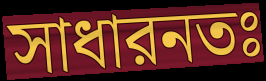
সাধারনতঃ